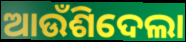
ଆଉଁଶିଦେଲା